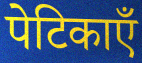
पेटिकाएँ